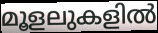
മൂളലുകളിൽ